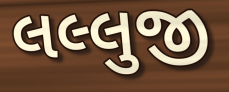
લલ્લુજી